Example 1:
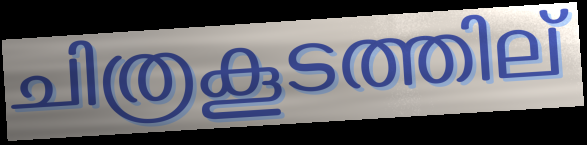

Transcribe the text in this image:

ചിത്രകൂടത്തില്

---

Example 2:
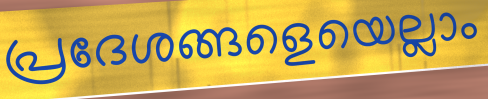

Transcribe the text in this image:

പ്രദേശങ്ങളെയെല്ലാം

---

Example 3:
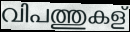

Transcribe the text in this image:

വിപത്തുകള്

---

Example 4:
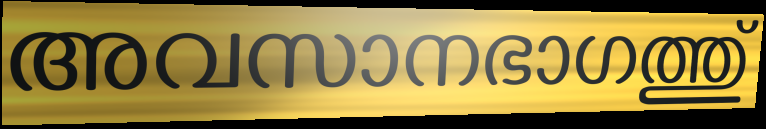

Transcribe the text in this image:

അവസാനഭാഗത്തു്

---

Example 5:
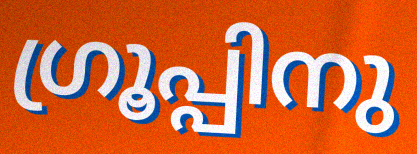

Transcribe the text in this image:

ഗ്രൂപ്പിനു